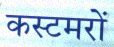
कस्टमरों